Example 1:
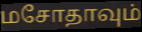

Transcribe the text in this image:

மசோதாவும்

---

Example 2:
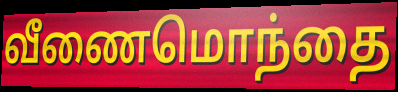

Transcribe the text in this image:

வீணைமொந்தை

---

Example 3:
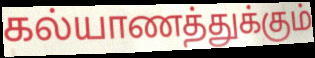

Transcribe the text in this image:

கல்யாணத்துக்கும்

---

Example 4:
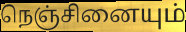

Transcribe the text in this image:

நெஞ்சினையும்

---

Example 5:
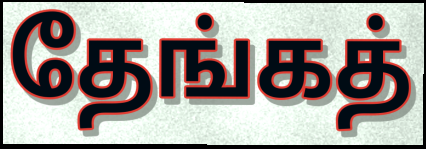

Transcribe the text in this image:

தேங்கத்